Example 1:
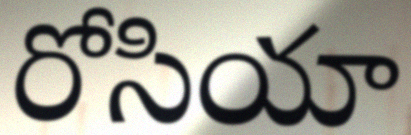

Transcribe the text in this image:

రోసియా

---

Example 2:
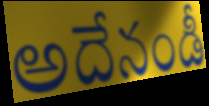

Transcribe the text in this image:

అదేనండీ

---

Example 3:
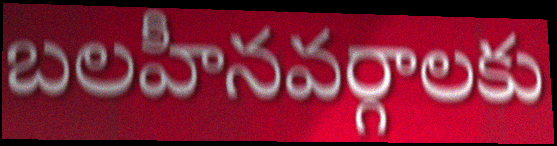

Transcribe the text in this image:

బలహీనవర్గాలకు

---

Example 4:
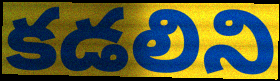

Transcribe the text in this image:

కడలిని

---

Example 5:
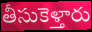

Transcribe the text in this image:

తీసుకెళ్తారు